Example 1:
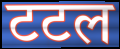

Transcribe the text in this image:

टटल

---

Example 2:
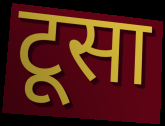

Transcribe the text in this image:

टूसा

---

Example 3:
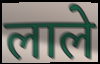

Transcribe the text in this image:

लाले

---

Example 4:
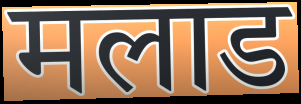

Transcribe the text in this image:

मलाड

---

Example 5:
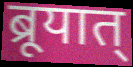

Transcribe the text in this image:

ब्रूयात्